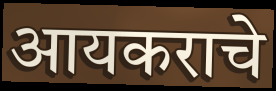
आयकराचे